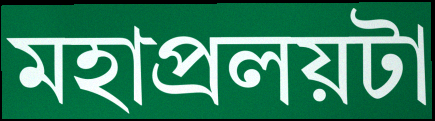
মহাপ্রলয়টা